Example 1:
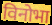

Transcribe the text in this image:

विनोभा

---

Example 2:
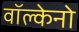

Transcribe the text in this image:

वॉल्केनो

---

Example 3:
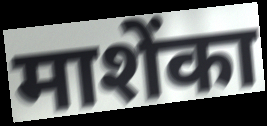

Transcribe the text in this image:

माशेंका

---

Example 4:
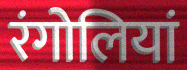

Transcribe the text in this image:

रंगोलियां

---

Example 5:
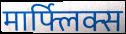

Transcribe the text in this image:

मार्फ्लिक्स